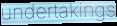
undertakings